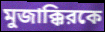
মুজাক্কিরকে